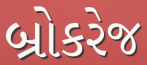
બ્રોકરેજ